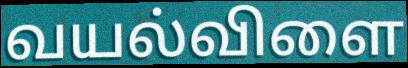
வயல்விளை